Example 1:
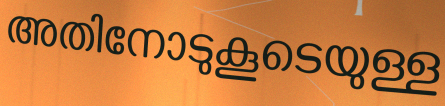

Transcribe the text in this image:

അതിനോടുകൂടെയുള്ള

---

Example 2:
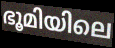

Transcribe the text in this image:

ഭൂമിയിലെ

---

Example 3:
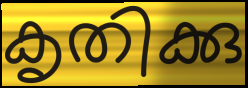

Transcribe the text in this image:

കൃതിക്കു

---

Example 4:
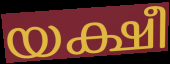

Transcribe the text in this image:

യക്ഷീ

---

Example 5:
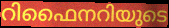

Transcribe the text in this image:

റിഫൈനറിയുടെ